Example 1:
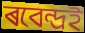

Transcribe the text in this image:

ৰবেন্দ্ৰই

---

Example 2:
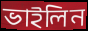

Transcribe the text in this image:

ভাইলিন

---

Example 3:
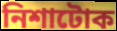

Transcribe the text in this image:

নিশাটোক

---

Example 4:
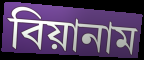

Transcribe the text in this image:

বিয়ানাম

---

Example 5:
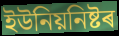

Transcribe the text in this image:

ইউনিয়নিষ্টৰ